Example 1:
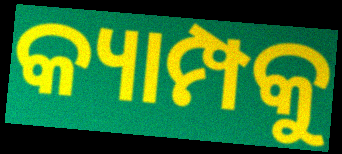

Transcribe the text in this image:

କ୍ୟାମ୍ପକୁ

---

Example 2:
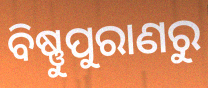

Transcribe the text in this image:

ବିଷ୍ଣୁପୁରାଣରୁ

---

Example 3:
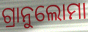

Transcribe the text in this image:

ଗ୍ରାନୁଲୋମା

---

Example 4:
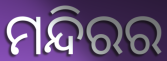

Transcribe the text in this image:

ମନ୍ଦିରର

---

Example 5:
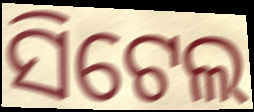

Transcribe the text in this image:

ସିଟେଲ